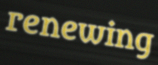
renewing